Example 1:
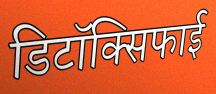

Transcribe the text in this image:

डिटॉक्सिफाई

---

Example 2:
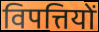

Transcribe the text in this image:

विपत्तियों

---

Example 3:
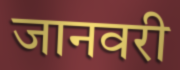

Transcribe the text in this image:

जानवरी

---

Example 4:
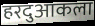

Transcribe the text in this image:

हरदुआकला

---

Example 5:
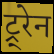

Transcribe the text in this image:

ट्र्रेन